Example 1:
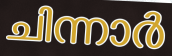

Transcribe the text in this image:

ചിന്നാർ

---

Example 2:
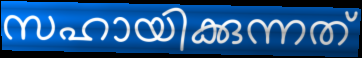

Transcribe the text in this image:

സഹായിക്കുന്നത്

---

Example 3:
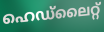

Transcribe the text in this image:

ഹെഡ്ലൈറ്റ്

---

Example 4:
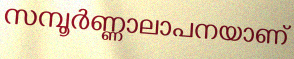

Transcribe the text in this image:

സമ്പൂർണ്ണാലാപനയാണ്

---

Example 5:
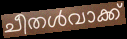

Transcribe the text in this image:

ചീതൾവാക്ക്